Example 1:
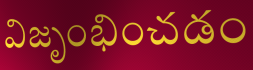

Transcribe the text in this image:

విజృంభించడం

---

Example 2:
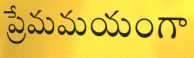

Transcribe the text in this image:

ప్రేమమయంగా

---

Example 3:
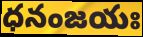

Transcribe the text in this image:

ధనంజయః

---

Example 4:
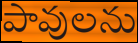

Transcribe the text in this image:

పావులను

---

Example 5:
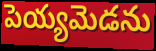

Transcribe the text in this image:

పెయ్యమెడను